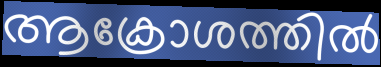
ആക്രോശത്തിൽ